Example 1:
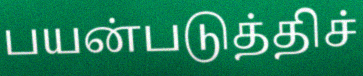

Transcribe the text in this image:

பயன்படுத்திச்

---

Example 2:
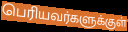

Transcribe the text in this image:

பெரியவர்களுக்குள்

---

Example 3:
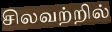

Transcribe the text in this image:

சிலவற்றில்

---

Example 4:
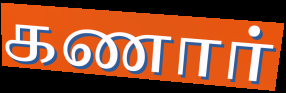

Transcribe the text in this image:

கணார்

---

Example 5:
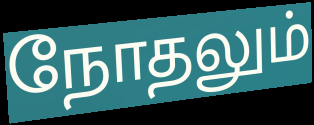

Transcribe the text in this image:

நோதலும்